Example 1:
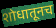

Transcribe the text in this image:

शोधातूनच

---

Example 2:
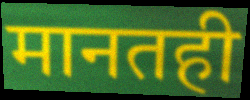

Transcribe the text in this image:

मानतही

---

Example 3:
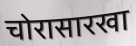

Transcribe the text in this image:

चोरासारखा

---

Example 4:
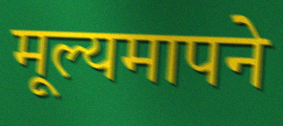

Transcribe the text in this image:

मूल्यमापने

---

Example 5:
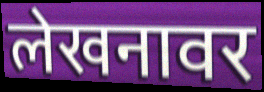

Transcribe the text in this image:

लेखनावर